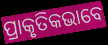
ପ୍ରାକୃତିକଭାବେ